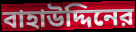
বাহাউদ্দিনের